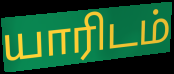
யாரிடம்